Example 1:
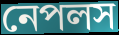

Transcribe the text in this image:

নেপলস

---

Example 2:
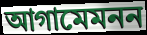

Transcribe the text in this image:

আগামেমনন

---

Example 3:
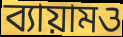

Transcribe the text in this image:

ব্যায়ামও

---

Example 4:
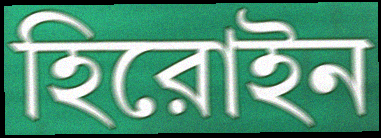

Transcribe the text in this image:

হিরোইন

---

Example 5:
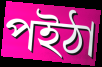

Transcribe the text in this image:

পইঠা